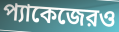
প্যাকেজেরও